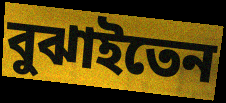
বুঝাইতেন